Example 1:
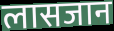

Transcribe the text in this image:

लासजान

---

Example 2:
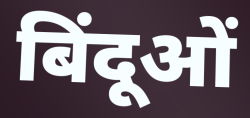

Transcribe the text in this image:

बिंदूओं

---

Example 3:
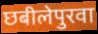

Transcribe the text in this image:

छबीलेपुरवा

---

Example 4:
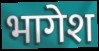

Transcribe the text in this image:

भागेश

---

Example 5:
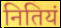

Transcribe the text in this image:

नितियं